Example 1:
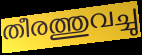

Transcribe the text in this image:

തീരത്തുവച്ചു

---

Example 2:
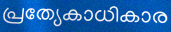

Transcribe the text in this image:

പ്രത്യേകാധികാര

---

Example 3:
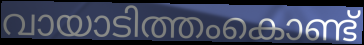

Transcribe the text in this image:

വായാടിത്തംകൊണ്ട്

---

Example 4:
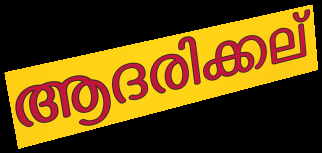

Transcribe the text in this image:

ആദരിക്കല്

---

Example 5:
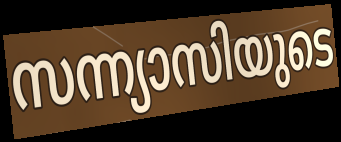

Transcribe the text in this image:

സന്ന്യാസിയുടെ